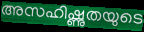
അസഹിഷ്ണുതയുടെ